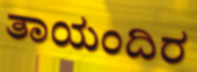
ತಾಯಂದಿರ